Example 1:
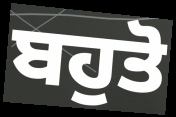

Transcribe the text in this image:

ਬਹੁਤੋ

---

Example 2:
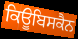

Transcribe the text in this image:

ਕਿਊਬਿਸਕੈਨ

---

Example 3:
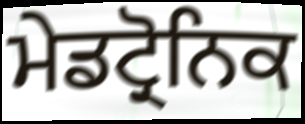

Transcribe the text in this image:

ਮੇਡਟ੍ਰੋਨਿਕ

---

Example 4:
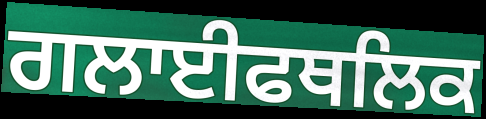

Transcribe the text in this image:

ਗਲਾਈਫਥਲਿਕ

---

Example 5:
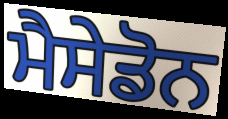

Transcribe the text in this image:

ਮੈਸੇਡੋਨ